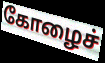
கோழைச்